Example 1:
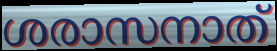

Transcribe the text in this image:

ശരാസനാത്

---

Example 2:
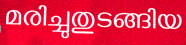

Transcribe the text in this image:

മരിച്ചുതുടങ്ങിയ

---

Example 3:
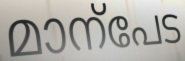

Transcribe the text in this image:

മാന്പേട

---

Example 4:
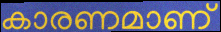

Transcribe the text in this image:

കാരണമാണ്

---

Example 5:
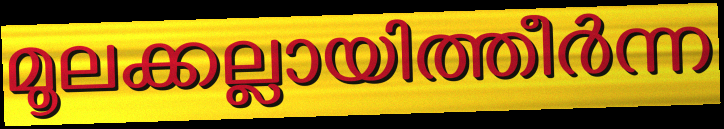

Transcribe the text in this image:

മൂലക്കല്ലായിത്തീർന്ന